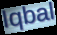
Iqbal